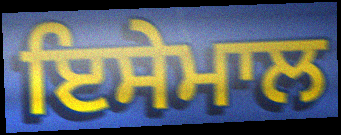
ਇਸੇਮਾਲ